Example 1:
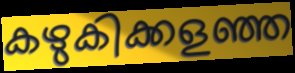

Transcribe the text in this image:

കഴുകിക്കളഞ്ഞ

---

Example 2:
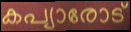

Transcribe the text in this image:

കപ്യാരോട്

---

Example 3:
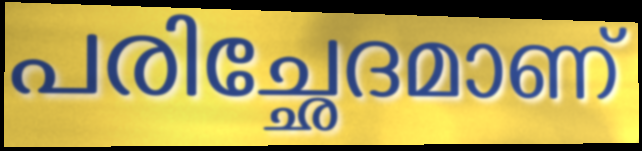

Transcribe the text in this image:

പരിച്ഛേദമാണ്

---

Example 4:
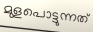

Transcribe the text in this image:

മുളപൊട്ടുന്നത്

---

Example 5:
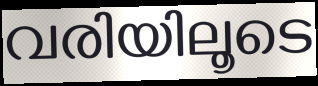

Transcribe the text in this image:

വരിയിലൂടെ